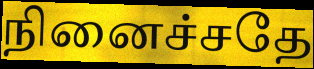
நினைச்சதே